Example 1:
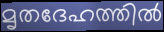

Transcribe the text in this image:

മൃതദേഹത്തിൽ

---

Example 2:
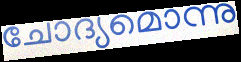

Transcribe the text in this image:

ചോദ്യമൊന്നു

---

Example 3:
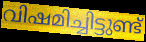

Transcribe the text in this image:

വിഷമിച്ചിട്ടുണ്ട്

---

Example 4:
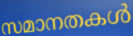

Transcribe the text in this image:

സമാനതകൾ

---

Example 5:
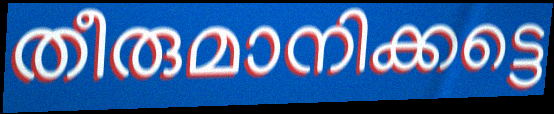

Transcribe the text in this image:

തീരുമാനിക്കട്ടെ